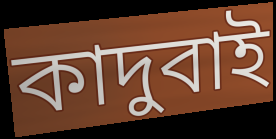
কাদুবাই